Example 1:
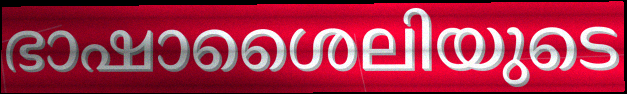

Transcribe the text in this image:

ഭാഷാശൈലിയുടെ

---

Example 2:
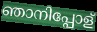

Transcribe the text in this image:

ഞാനിപ്പോള്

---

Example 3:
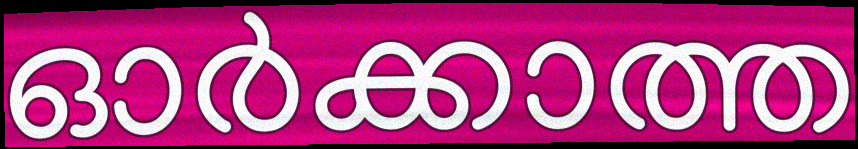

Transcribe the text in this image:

ഓർക്കാത്ത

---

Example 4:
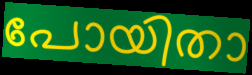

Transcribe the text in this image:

പോയിതാ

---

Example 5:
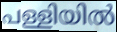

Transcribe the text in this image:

പള്ളിയിൽ